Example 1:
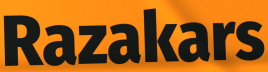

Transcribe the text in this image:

Razakars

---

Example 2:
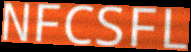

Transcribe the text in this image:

NFCSFL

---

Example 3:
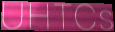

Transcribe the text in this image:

UHTCs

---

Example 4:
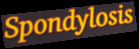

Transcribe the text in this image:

Spondylosis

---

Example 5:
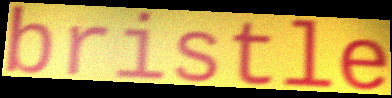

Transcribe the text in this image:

bristle